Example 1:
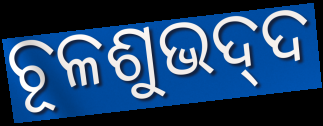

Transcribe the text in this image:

ଚୂଳଶୁଭଦ୍‍ଦ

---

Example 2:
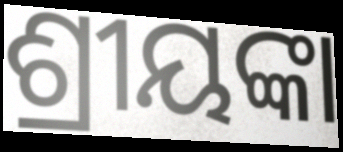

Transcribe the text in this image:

ଶ୍ରୀୟଙ୍କା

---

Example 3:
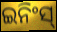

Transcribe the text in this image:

ଇନିଂସ୍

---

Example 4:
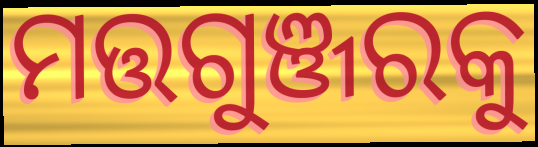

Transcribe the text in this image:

ମତ୍ତଗୁଞ୍ଜରକୁ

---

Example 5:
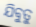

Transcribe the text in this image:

ଯିବୁତୁ